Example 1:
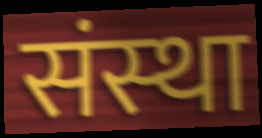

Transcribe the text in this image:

संस्‍था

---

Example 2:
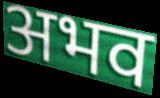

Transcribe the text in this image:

अभव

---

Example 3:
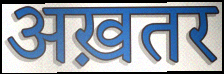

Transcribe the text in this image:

अख़तर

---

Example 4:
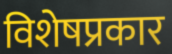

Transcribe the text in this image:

विशेषप्रकार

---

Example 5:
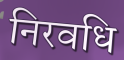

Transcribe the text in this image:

निरवधि